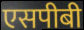
एसपीबी